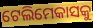
ଟେଲିମେକାସକୁ